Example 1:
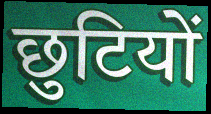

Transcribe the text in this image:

छुटियों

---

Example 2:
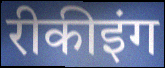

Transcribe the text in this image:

रीकीइंग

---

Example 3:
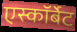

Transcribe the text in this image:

एस्कॉर्बेट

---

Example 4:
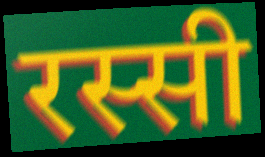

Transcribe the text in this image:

रस्‍सी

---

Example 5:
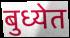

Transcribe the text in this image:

बुध्येत